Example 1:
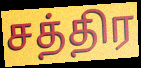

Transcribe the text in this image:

சத்திர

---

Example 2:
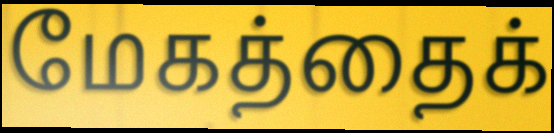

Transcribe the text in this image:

மேகத்தைக்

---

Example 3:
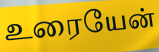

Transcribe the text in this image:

உரையேன்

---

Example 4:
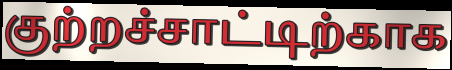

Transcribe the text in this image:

குற்றச்சாட்டிற்காக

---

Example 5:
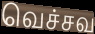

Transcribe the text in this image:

வெச்சவ